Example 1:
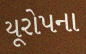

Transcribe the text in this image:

યૂરોપના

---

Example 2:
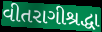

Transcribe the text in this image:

વીતરાગીશ્રદ્ધા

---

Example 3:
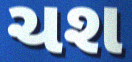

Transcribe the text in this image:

ચશ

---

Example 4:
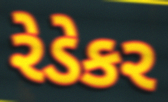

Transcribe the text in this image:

રેડેકર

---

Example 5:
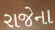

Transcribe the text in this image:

રાજેના